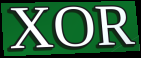
XOR